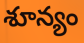
శూన్యం